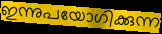
ഇന്നുപയോഗിക്കുന്ന